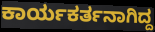
ಕಾರ್ಯಕರ್ತನಾಗಿದ್ದ